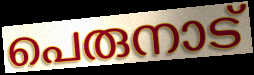
പെരുനാട്